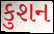
કુશન